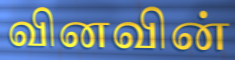
வினவின்